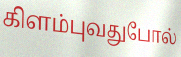
கிளம்புவதுபோல்